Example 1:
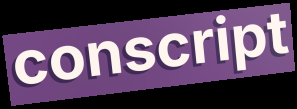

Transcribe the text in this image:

conscript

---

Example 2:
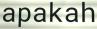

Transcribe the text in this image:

apakah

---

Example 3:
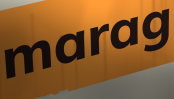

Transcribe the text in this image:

marag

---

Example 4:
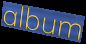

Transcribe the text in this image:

album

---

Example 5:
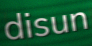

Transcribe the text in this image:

disun